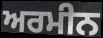
ਅਰਮੀਨ